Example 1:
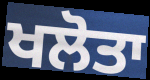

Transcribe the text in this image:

ਖਲੋਤਾ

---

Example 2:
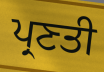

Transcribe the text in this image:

ਪ੍ਰਣਤੀ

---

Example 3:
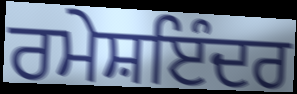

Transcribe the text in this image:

ਰਮੇਸ਼ਇੰਦਰ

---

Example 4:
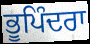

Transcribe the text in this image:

ਭੂਪਿੰਦਰਾ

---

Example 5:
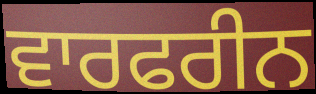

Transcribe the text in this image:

ਵਾਰਫਰੀਨ